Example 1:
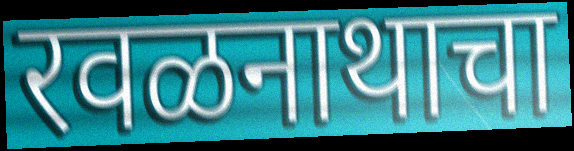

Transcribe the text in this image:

रवळनाथाचा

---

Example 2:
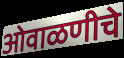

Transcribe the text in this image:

ओवाळणीचे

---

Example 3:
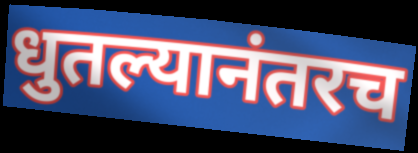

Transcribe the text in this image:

धुतल्यानंतरच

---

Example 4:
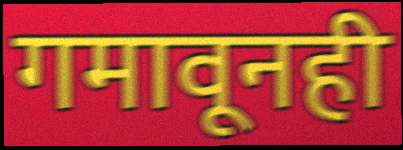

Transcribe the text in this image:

गमावूनही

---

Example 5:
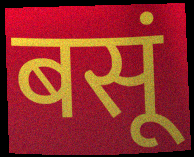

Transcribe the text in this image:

बसूं